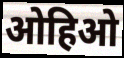
ओहिओ